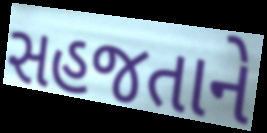
સહજતાને